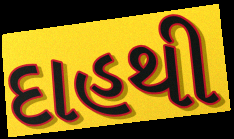
દાહથી